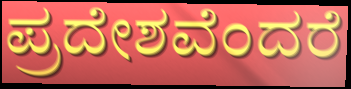
ಪ್ರದೇಶವೆಂದರೆ